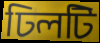
ঢিলটি